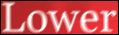
Lower